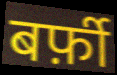
बर्फ़ी